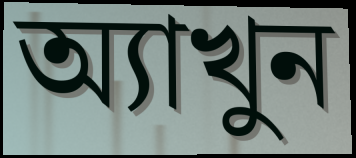
অ্যাখুন